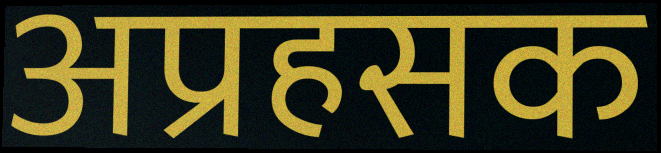
अप्रहसक